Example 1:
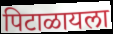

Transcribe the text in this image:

पिटाळायला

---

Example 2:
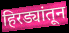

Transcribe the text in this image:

हिरड्यांतून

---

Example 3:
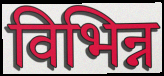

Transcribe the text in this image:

विभिन्न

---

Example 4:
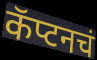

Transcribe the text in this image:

कॅप्टनचं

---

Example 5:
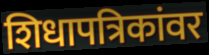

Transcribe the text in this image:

शिधापत्रिकांवर